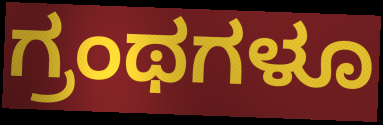
ಗ್ರಂಥಗಳೂ